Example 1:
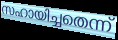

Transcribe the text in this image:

സഹായിച്ചതെന്ന്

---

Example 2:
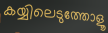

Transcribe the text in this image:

കയ്യിലെടുത്തോളൂ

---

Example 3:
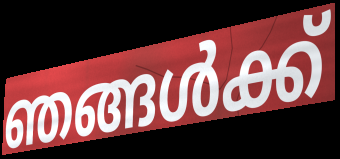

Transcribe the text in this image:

ഞങ്ങൾക്ക്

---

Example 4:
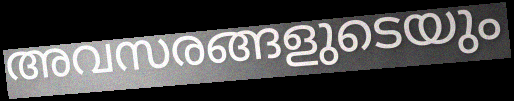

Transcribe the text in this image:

അവസരങ്ങളുടെയും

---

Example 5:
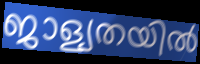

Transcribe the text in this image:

ജാള്യതയിൽ